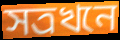
সত্ৰখনে